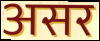
असर